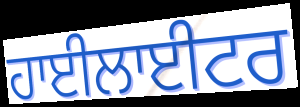
ਹਾਈਲਾਈਟਰ